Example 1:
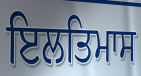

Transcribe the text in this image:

ਇਲਤਿਮਾਸ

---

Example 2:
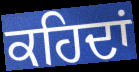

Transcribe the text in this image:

ਕਹਿਦਾਂ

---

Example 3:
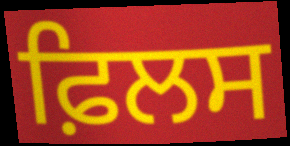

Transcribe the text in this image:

ਫ਼ਿਲਸ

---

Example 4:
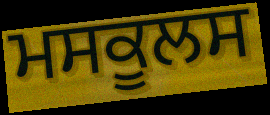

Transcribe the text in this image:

ਮਸਕੂਲਸ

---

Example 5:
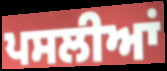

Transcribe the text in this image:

ਪਸਲੀਆਂ